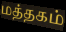
மத்தகம்